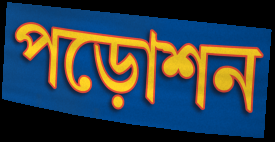
পড়োশন